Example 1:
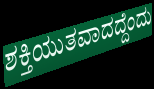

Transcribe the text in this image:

ಶಕ್ತಿಯುತವಾದದ್ದೆಂದು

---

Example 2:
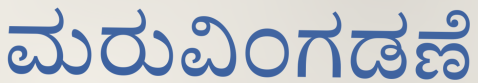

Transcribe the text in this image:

ಮರುವಿಂಗಡಣೆ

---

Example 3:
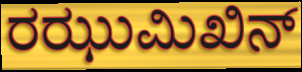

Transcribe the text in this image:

ರಝುಮಿಖಿನ್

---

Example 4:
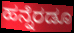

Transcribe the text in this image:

ಹನ್ನೆರಡೂ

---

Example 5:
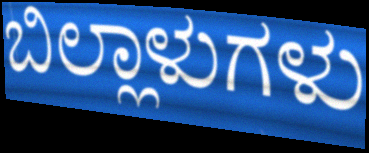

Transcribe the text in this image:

ಬಿಲ್ಲಾಳುಗಳು